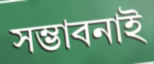
সম্ভাবনাই